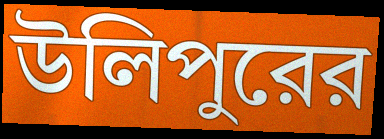
উলিপুরের